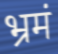
भ्रमं